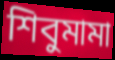
শিবুমামা